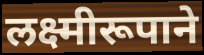
लक्ष्मीरूपाने